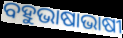
ବହୁଭାଷାଭାଷୀ